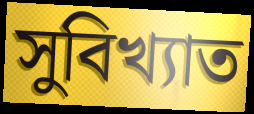
সুবিখ্যাত